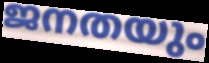
ജനതയും